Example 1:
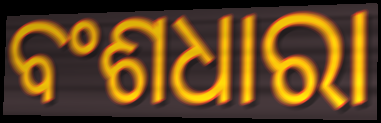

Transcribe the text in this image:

ବଂଶଧାରା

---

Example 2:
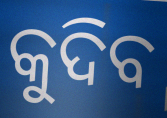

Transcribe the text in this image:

କୁଦିବ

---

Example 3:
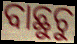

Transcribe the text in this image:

ବାଛୁଚୁ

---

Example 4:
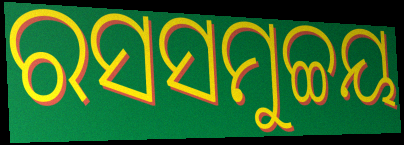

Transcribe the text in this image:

ରସସମୁଚ୍ଚୟ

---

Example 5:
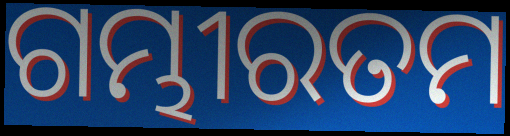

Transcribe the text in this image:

ଗମ୍ଭୀରତମ